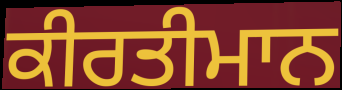
ਕੀਰਤੀਮਾਨ